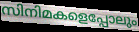
സിനിമകളെപ്പോലും